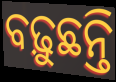
ବଢ଼ୁଛନ୍ତି